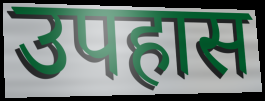
उपहास